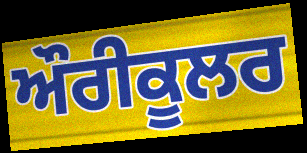
ਔਰੀਕੂਲਰ